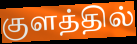
குளத்தில்